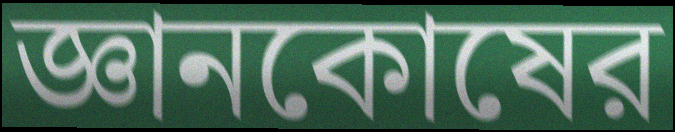
জ্ঞানকোষের